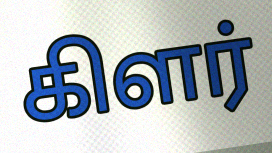
கிளர்